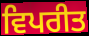
ਵਿਪਰੀਤ